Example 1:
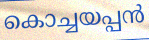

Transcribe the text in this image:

കൊച്ചയപ്പൻ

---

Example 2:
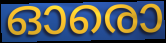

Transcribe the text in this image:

ഓരൊ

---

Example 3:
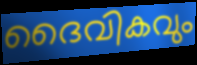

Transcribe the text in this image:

ദൈവികവും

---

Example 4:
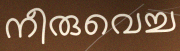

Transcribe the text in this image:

നീരുവെച്ച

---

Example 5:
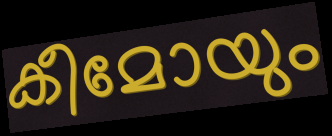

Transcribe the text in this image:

കീമോയും